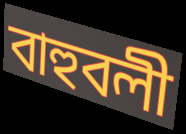
বাহুবলী